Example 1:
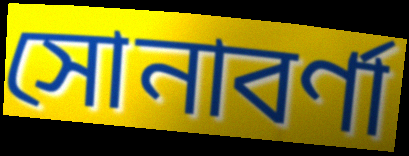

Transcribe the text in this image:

সোনাবর্ণা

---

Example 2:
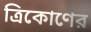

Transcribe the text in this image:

ত্রিকোণের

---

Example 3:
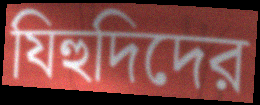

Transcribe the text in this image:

যিহুদিদের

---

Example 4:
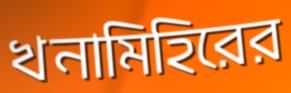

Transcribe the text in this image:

খনামিহিরের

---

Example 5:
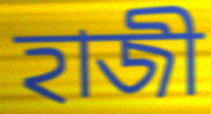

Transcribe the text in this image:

হাজী